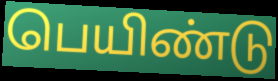
பெயிண்டு